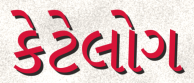
કેટેલોગ